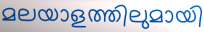
മലയാളത്തിലുമായി